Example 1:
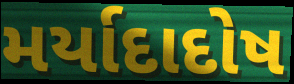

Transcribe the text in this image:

મર્યાદાદોષ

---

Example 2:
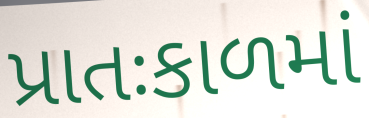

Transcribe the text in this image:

પ્રાતઃકાળમાં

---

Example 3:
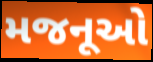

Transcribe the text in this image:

મજનૂઓ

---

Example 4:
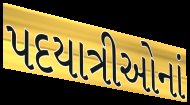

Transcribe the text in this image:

પદયાત્રીઓનાં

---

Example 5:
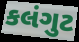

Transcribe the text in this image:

કલંગુટ